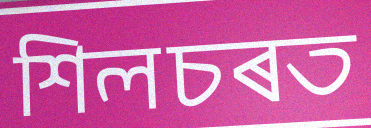
শিলচৰত